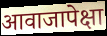
आवाजापेक्षा